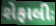
શેફાલીઃ